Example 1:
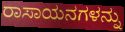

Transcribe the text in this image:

ರಾಸಾಯನಗಳನ್ನು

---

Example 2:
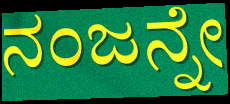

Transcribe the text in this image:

ನಂಜನ್ನೇ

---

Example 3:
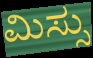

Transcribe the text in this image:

ಮಿಸ್ಸು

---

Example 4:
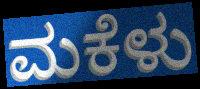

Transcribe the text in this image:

ಮಕೆಳು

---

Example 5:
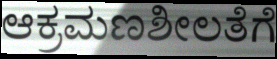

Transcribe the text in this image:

ಆಕ್ರಮಣಶೀಲತೆಗೆ